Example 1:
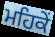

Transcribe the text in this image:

ਮਹਿਕੇਂ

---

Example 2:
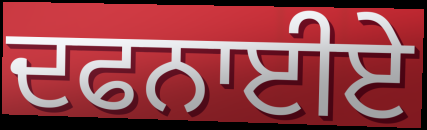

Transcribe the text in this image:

ਦਫਨਾਈਏ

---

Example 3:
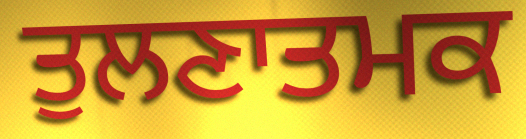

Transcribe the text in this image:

ਤੁਲਣਾਤਮਕ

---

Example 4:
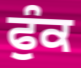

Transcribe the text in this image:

ਫੁੰਕ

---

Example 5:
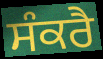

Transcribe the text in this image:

ਸੰਕਰੈ